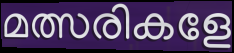
മത്സരികളേ